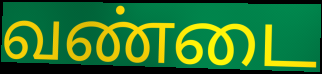
வண்டை